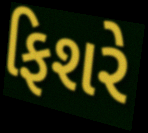
ફિશરે